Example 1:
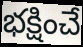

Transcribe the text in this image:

భక్షించే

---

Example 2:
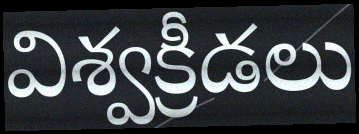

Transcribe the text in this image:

విశ్వక్రీడలు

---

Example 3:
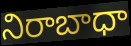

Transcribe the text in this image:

నిరాబాధా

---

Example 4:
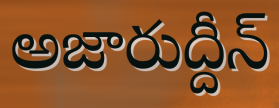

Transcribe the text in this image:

అజారుద్దీన్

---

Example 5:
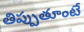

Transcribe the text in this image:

తిప్పుతూంటే